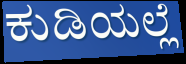
ಕುಡಿಯಲ್ಲೆ